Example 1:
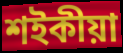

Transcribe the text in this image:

শইকীয়া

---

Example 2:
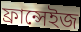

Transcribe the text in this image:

ফ্ৰান্সেইজ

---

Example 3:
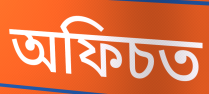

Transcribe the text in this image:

অফিচত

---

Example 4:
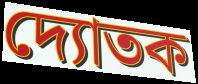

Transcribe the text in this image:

দ্যোতক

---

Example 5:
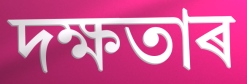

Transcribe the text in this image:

দক্ষতাৰ